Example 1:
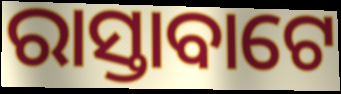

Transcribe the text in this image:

ରାସ୍ତାବାଟେ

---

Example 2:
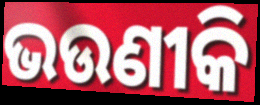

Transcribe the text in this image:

ଭଉଣୀକି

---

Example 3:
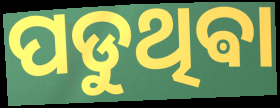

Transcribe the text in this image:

ପଡୁଥିଵା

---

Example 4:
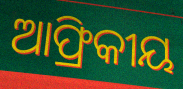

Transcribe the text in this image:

ଆଫ୍ରିକୀୟ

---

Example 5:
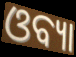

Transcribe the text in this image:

ଓବ୍ୟା